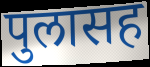
पुलासह